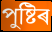
পুষ্টিৰ